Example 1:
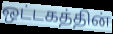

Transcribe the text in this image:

ஒட்டகத்தின்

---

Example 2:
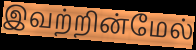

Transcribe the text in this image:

இவற்றின்மேல்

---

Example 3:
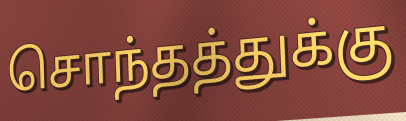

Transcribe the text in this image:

சொந்தத்துக்கு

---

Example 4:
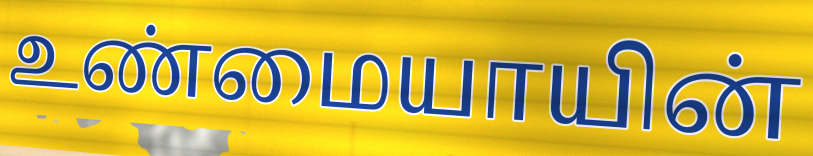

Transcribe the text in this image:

உண்மையாயின்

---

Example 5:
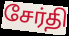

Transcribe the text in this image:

சேர்தி